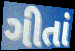
ગીતાં